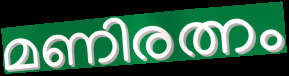
മണിരത്നം